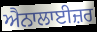
ਐਨਾਲਾਈਜ਼ਰ